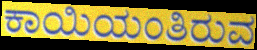
ಕಾಯಿಯಂತಿರುವ